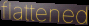
flattened